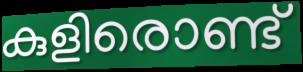
കുളിരൊണ്ട്